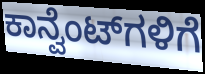
ಕಾನ್ವೆಂಟ್‌ಗಳಿಗೆ